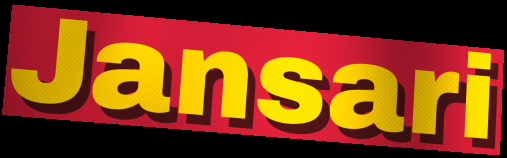
Jansari